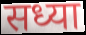
सध्या